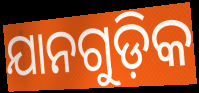
ଯାନଗୁଡ଼ିକ